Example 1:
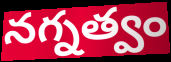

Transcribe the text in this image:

నగ్నత్వం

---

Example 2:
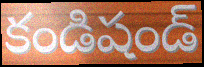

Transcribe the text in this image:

కండిషండ్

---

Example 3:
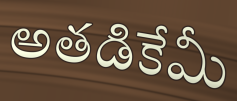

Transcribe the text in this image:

అతడికేమీ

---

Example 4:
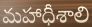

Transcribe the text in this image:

మహాధీశాలి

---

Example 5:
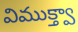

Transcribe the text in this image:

విముక్త్వా